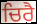
ਚਿਰੈ